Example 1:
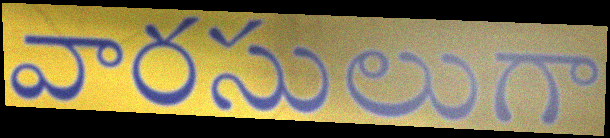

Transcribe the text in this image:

వారసులుగా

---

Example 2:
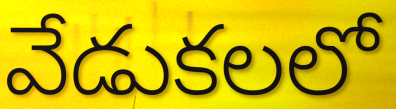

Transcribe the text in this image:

వేడుకలలో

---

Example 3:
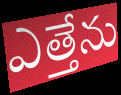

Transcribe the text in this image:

ఎత్తేను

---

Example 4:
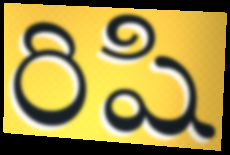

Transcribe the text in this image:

రిషి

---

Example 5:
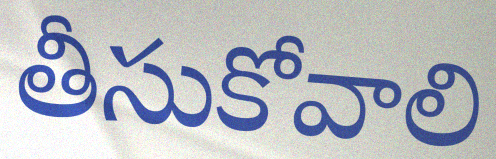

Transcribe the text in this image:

తీసుకోవాలి